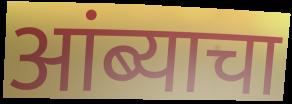
आंब्याचा